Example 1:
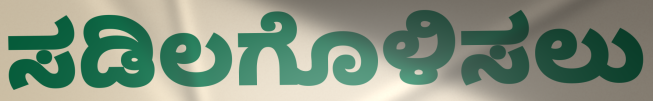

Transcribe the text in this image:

ಸಡಿಲಗೊಳಿಸಲು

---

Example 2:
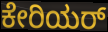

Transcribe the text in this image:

ಕೇರಿಯರ್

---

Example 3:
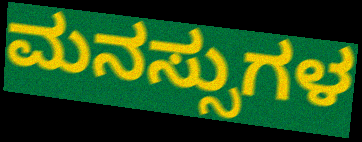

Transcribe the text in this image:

ಮನಸ್ಸುಗಳ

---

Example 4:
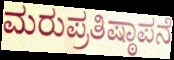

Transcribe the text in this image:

ಮರುಪ್ರತಿಷ್ಠಾಪನೆ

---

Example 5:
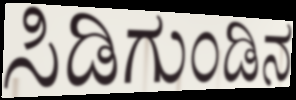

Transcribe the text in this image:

ಸಿಡಿಗುಂಡಿನ